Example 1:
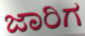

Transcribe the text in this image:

ಜಾರಿಗ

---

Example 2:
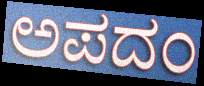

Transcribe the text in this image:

ಅಪದಂ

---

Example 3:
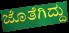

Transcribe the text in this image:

ಜೊತೆಗಿದ್ದು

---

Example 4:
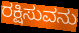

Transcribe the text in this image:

ರಕ್ಷಿಸುವನು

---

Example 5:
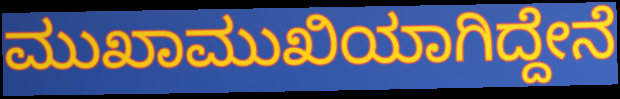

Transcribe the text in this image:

ಮುಖಾಮುಖಿಯಾಗಿದ್ದೇನೆ